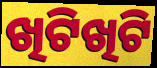
ଖିଟିଖିଟି